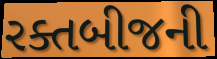
રક્તબીજની